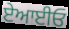
ਏਆਈਓ